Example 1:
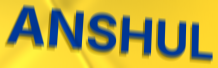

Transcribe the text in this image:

ANSHUL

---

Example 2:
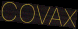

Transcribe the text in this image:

COVAX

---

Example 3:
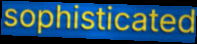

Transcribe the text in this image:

sophisticated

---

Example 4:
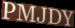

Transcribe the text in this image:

PMJDY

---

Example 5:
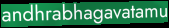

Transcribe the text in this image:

andhrabhagavatamu